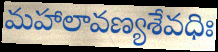
మహాలావణ్యశేవధిః